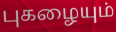
புகழையும்